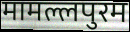
मामल्लपुरम